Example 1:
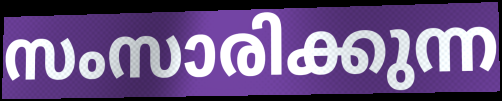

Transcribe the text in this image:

സംസാരിക്കുന്ന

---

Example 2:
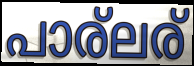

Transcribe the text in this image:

പാര്ലര്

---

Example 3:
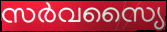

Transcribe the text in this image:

സർവസ്യൈ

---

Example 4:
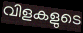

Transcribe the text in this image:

വിളകളുടെ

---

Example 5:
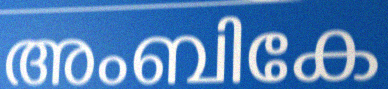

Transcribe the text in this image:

അംബികേ